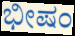
ಭೀಷಂ